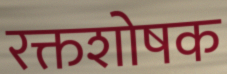
रक्तशोषक